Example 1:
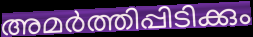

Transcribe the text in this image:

അമർത്തിപ്പിടിക്കും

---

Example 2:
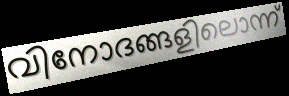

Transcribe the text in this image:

വിനോദങ്ങളിലൊന്ന്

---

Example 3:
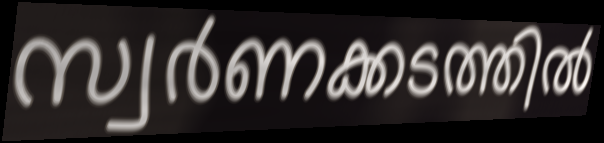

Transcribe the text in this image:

സ്വർണക്കടത്തിൽ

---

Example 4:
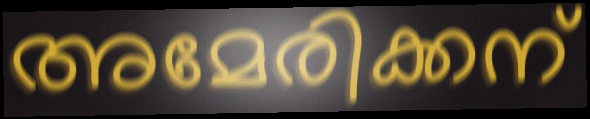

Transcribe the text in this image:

അമേരിക്കന്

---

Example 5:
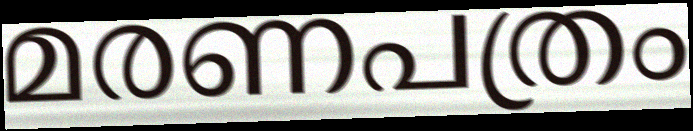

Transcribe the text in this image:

മരണപത്രം